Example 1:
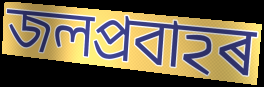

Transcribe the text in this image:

জলপ্ৰবাহৰ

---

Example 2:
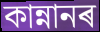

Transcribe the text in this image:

কান্নানৰ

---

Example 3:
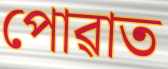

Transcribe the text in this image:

পোৱাত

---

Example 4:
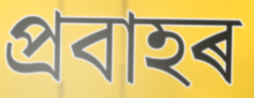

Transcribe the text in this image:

প্ৰবাহৰ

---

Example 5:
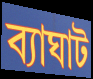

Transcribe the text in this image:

ব্যাঘাট